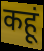
कहूं